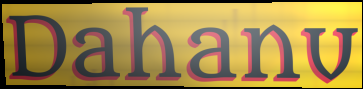
Dahanu